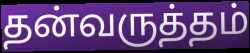
தன்வருத்தம்